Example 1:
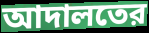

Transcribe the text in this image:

আদালতের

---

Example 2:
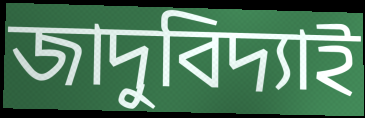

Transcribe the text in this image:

জাদুবিদ্যাই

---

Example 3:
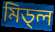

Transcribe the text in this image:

মিড্‌ল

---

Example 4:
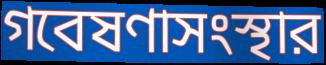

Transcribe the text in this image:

গবেষণাসংস্থার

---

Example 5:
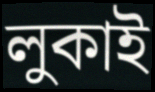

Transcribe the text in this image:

লুকাই